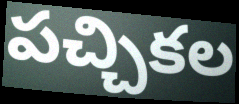
పచ్చికల